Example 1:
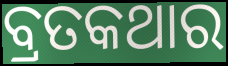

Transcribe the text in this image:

ବ୍ରତକଥାର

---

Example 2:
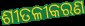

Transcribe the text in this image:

ଶୀତଳୀକରଣ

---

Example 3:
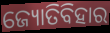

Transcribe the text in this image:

ଜ୍ୟୋତିବିହାର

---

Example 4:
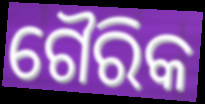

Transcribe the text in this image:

ଗୈରିକ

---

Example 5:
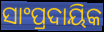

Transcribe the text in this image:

ସାଂପ୍ରଦାୟିକ